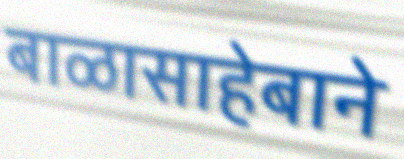
बाळासाहेबाने